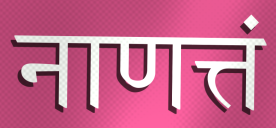
नाणत्तं